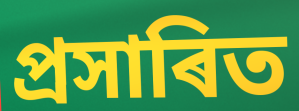
প্ৰসাৰিত